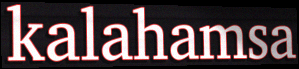
kalahamsa